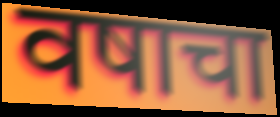
वषाचा